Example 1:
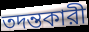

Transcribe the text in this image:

তদন্তকারী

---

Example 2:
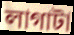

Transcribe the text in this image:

লাগাটা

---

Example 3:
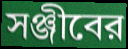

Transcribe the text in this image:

সঞ্জীবের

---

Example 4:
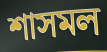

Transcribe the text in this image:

শাসমল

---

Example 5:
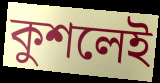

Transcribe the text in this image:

কুশলেই